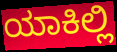
ಯಾಕಿಲ್ಲಿ